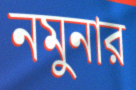
নমুনার